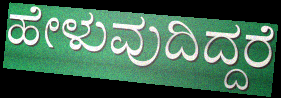
ಹೇಳುವುದಿದ್ದರೆ